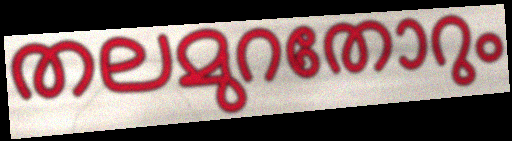
തലമുറതോറും